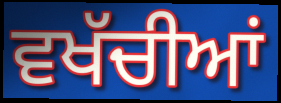
ਵਖੱਚੀਆਂ